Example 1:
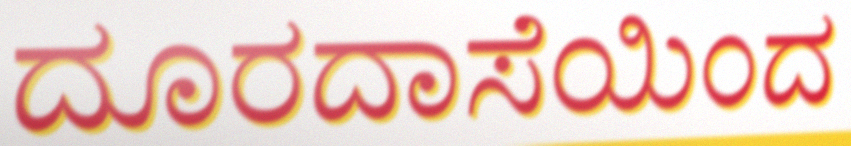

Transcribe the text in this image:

ದೂರದಾಸೆಯಿಂದ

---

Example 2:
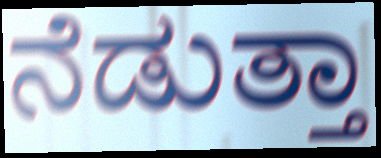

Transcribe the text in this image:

ನೆಡುತ್ತಾ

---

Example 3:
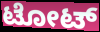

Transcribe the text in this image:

ಟೋಟ್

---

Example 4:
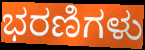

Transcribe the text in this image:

ಭರಣಿಗಳು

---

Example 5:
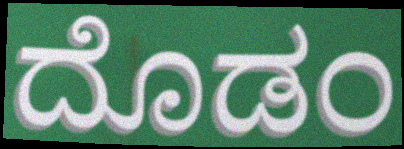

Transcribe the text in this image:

ದೊಡಂ